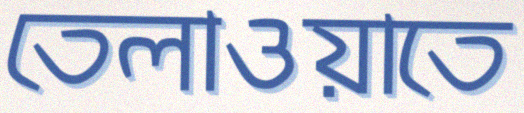
তেলাওয়াতে